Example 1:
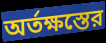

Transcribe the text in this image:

অর্তক্ষস্তের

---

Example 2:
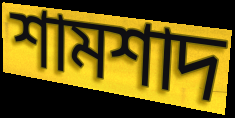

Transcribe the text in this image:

শামশাদ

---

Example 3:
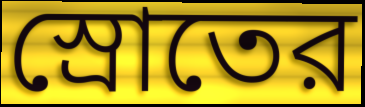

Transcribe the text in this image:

স্রোতের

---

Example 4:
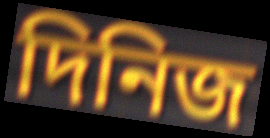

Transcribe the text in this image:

দিনিজ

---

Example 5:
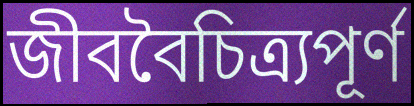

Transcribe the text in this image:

জীববৈচিত্র্যপূর্ণ